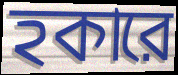
হকারে